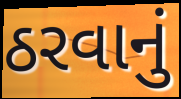
ઠરવાનું